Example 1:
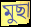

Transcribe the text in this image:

মুছা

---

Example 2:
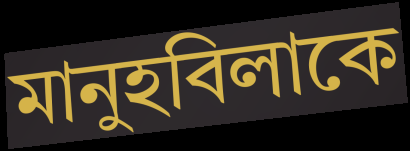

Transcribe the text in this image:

মানুহবিলাকে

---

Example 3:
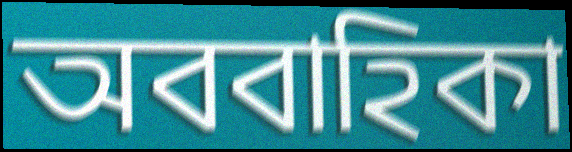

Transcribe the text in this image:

অববাহিকা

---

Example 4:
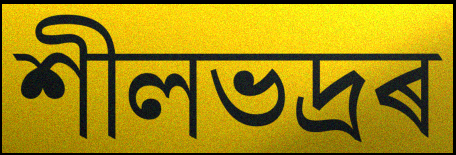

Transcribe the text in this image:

শীলভদ্ৰৰ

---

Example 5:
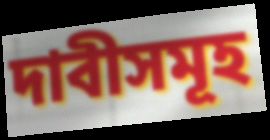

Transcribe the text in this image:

দাবীসমূহ